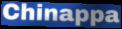
Chinappa